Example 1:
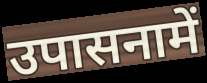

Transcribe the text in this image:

उपासनामें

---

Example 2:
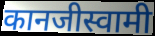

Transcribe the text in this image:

कानजीस्वामी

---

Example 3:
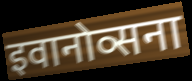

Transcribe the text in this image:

इवानोव्सना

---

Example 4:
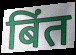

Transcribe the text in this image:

बिंत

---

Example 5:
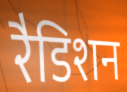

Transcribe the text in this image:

रैडिशन